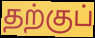
தற்குப்